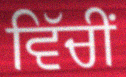
ਵਿੱਚੀਂ